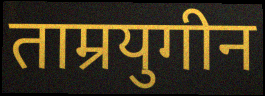
ताम्रयुगीन